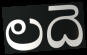
లదె